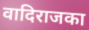
वादिराजका